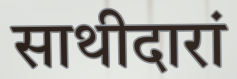
साथीदारां